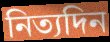
নিত্যদিন